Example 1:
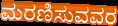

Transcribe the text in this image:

ಮರಣಿಸುವವರ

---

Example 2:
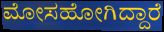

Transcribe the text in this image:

ಮೋಸಹೋಗಿದ್ದಾರೆ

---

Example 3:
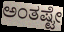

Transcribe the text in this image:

ಅಂತಷ್ಟೇ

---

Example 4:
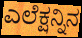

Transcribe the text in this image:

ಎಲೆಕ್ಷನ್ನಿನ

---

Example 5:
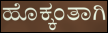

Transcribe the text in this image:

ಹೊಕ್ಕಂತಾಗಿ